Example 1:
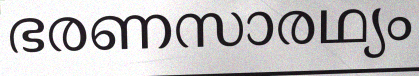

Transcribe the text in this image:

ഭരണസാരഥ്യം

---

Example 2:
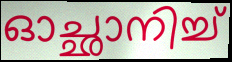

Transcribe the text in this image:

ഓച്ഛാനിച്ച്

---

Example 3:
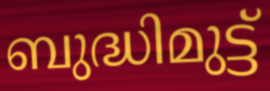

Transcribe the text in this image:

ബുദ്ധിമുട്ട്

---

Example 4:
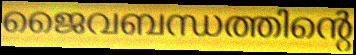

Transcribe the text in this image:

ജൈവബന്ധത്തിന്റെ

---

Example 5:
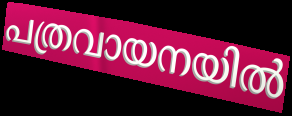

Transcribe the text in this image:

പത്രവായനയിൽ